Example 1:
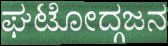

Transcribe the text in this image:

ಘಟೋದ್ಗಜನ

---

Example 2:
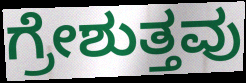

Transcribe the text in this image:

ಗ್ರೇಶುತ್ತವು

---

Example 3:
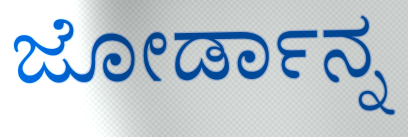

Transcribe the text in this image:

ಜೋರ್ಡಾನ್ನ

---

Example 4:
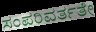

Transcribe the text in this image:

ಸಂಪರಿವರ್ತತೇ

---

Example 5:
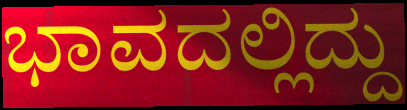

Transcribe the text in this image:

ಭಾವದಲ್ಲಿದ್ದು